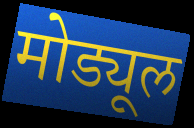
मोड्यूल